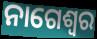
ନାଗେଶ୍ଵର